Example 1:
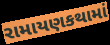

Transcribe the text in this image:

રામાયણકથામાં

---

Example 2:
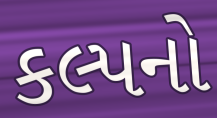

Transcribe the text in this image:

કલ્પનો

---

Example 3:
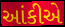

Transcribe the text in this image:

આંકીએ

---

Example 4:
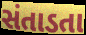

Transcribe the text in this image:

સંતાડતા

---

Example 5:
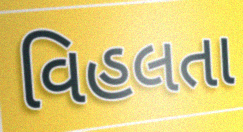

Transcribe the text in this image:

વિહલતા